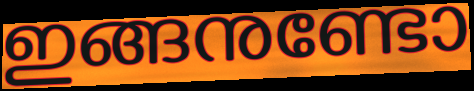
ഇങ്ങനുണ്ടോ